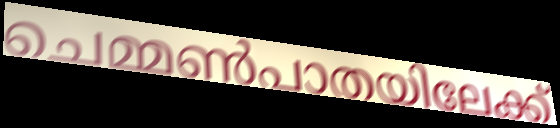
ചെമ്മൺപാതയിലേക്ക്